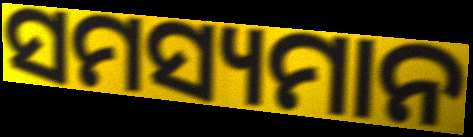
ସମସ୍ୟମାନ